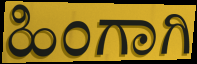
ಹಿಂಗಾಗಿ